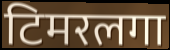
टिमरलगा